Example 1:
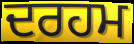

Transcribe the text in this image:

ਦਰਹਮ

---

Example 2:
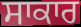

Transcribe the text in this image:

ਸਾਕਾਰ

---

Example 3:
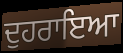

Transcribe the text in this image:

ਦੁਹਰਾਇਆ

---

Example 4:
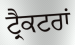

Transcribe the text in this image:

ਟ੍ਰੈਕਟਰਾਂ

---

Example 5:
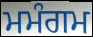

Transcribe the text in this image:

ਮਮੰਗਮ